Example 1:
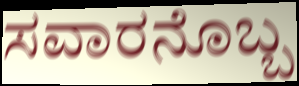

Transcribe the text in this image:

ಸವಾರನೊಬ್ಬ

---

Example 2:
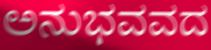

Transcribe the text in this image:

ಅನುಭವವದ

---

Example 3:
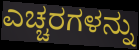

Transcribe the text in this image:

ಎಚ್ಚರಗಳನ್ನು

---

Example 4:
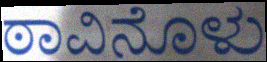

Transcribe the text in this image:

ಠಾವಿನೊಳು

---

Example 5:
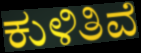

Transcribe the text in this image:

ಕುಳಿತಿವೆ